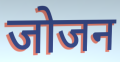
जोजन